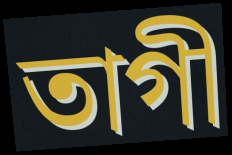
তাগী